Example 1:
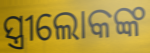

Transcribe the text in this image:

ସ୍ତ୍ରୀଲୋକଙ୍କ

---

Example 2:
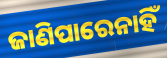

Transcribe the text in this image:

ଜାଣିପାରେନାହିଁ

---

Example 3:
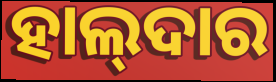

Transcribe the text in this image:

ହାଲ୍‌ଦାର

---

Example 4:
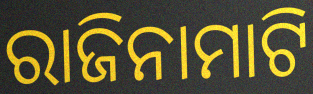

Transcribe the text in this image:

ରାଜିନାମାଟି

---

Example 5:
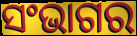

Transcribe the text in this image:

ସଂଭାଗର